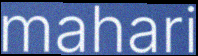
mahari